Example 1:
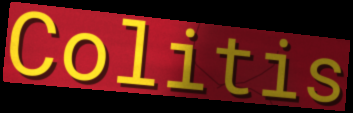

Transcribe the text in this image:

Colitis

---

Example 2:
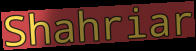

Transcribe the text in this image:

Shahriar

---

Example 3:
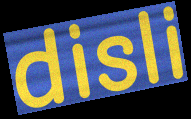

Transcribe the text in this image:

disli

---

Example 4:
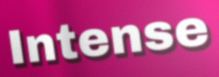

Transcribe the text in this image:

Intense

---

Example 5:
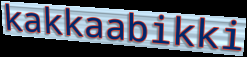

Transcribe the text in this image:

kakkaabikki